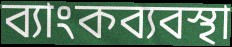
ব্যাংকব্যবস্থা